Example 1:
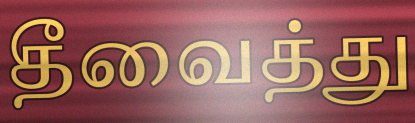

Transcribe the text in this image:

தீவைத்து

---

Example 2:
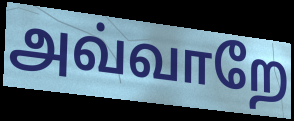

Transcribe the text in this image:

அவ்வாறே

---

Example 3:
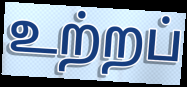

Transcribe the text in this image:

உற்றப்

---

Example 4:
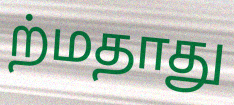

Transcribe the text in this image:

ற்மதாது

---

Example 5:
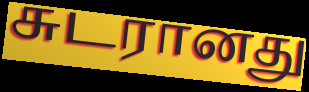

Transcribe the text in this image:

சுடரானது